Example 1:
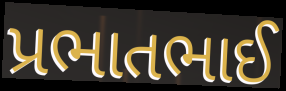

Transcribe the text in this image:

પ્રભાતભાઈ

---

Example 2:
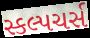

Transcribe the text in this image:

સ્કલ્પચર્સ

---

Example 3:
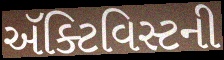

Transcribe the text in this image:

ઍક્ટિવિસ્ટની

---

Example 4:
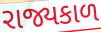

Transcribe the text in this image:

રાજ્યકાળ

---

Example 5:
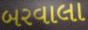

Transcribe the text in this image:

બરવાલા